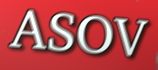
ASOV